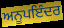
ਅਨੂਪਇੰਦਰ